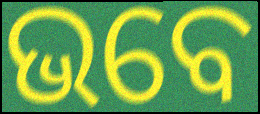
ଭବେ